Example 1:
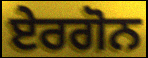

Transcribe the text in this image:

ਏਰਗੋਨ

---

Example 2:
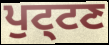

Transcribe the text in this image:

ਪੁਟ੍ਟਣ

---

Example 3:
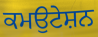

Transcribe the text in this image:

ਕਮਉਟੇਸ਼ਨ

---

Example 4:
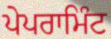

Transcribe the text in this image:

ਪੇਪਰਾਮਿੰਟ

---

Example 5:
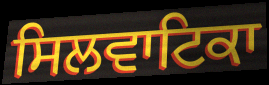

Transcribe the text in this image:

ਸਿਲਵਾਟਿਕਾ